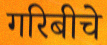
गरिबीचे